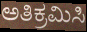
ಅತಿಕ್ರಮಿಸಿ